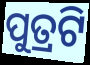
ପୁତ୍ରଟି